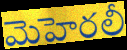
మెహెరలీ